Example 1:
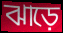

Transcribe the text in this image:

ঝাড়ে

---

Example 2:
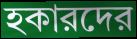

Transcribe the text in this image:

হকারদের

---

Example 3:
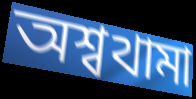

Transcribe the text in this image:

অশ্বথামা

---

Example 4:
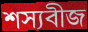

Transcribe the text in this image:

শস্যবীজ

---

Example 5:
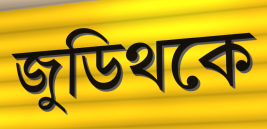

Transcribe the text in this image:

জুডিথকে